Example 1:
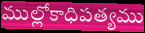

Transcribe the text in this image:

ముల్లోకాధిపత్యము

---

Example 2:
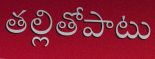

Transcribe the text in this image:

తల్లితోపాటు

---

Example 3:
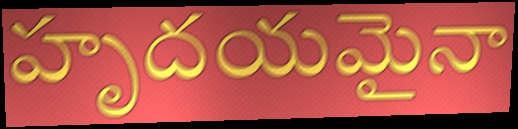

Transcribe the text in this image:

హృదయమైనా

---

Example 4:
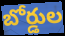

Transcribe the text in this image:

బోర్డుల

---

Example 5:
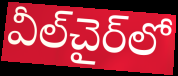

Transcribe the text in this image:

వీల్‌చైర్‌లో